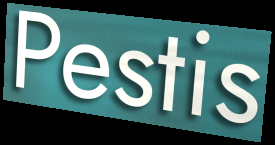
Pestis